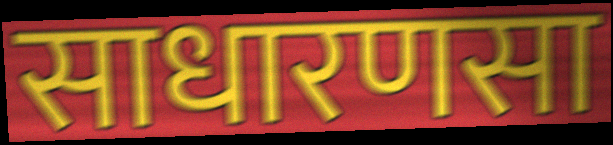
साधारणसा